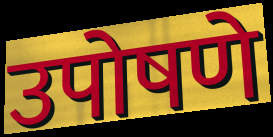
उपोषणे